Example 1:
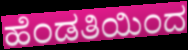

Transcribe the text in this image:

ಹೆಂಡತಿಯಿಂದ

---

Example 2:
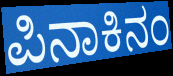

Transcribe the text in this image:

ಪಿನಾಕಿನಂ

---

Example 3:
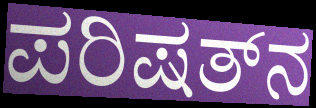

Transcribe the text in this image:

ಪರಿಷತ್‌ನ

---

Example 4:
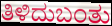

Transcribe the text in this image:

ತಿಳಿದುಬಂತು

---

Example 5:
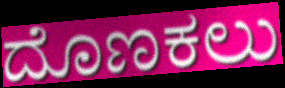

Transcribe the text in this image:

ದೊಣಕಲು